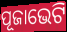
ପୂଜାଭେଟି